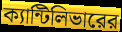
ক্যান্টিলিভারের